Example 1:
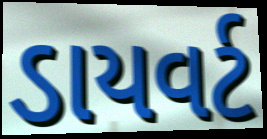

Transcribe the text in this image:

ડાયવર્ટ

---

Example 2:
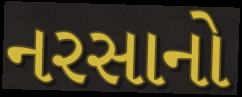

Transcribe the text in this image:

નરસાનો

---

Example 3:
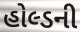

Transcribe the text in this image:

હોલ્ડની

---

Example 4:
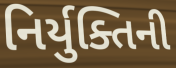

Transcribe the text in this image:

નિર્યુક્તિની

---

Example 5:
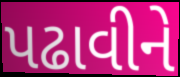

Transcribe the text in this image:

પઢાવીને